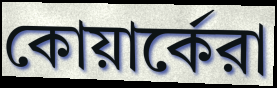
কোয়ার্কেরা